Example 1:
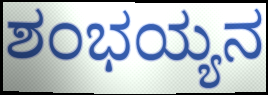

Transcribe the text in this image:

ಶಂಭಯ್ಯನ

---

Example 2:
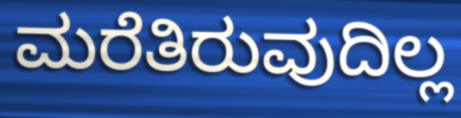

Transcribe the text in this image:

ಮರೆತಿರುವುದಿಲ್ಲ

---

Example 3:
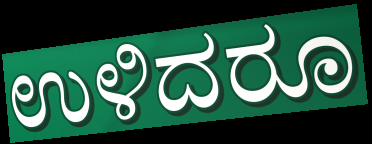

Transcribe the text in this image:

ಉಳಿದರೂ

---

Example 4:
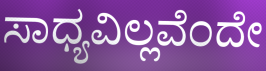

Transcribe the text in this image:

ಸಾಧ್ಯವಿಲ್ಲವೆಂದೇ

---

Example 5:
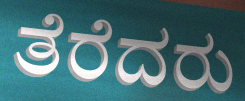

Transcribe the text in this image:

ತೆರೆದರು